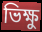
ভিক্ষু